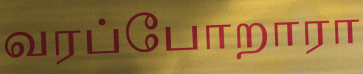
வரப்போறாரா